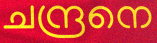
ചന്ദ്രനെ